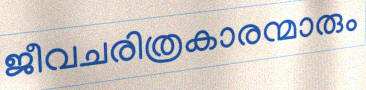
ജീവചരിത്രകാരന്മാരും